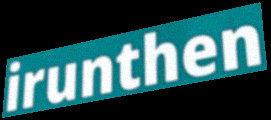
irunthen